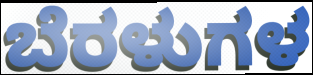
ಬೆರಳುಗಳ